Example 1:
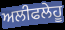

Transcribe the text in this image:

ਅਲੀਫਲੇਹੂ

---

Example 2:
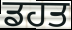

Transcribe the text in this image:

ਡਹਤ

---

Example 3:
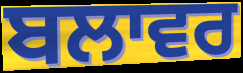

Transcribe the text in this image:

ਬਲਾਵਰ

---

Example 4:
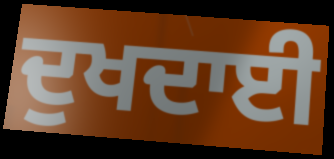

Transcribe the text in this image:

ਦੁਖਦਾਈ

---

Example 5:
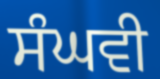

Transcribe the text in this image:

ਸੰਘਵੀ